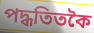
পদ্ধতিতকৈ